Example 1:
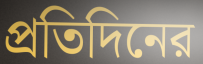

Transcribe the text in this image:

প্রতিদিনের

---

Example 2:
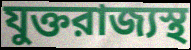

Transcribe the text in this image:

যুক্তরাজ্যস্থ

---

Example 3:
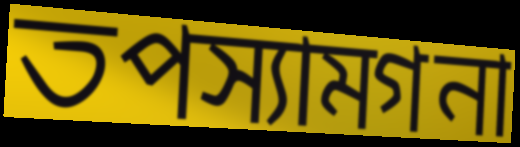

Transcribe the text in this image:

তপস্যামগনা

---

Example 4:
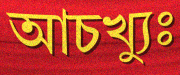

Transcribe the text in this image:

আচখ্যুঃ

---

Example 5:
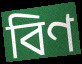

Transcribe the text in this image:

বিণ